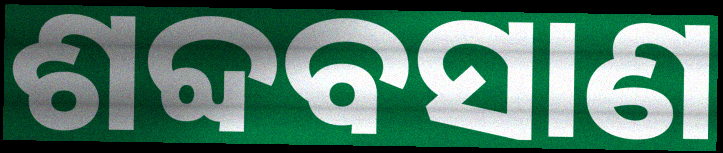
ଶବ୍ଦବସାଣ